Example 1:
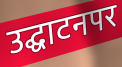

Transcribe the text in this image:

उद्घाटनपर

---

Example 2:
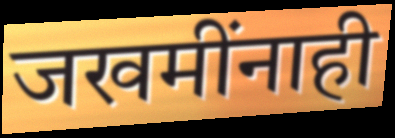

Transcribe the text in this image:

जखमींनाही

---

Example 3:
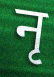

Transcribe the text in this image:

नृ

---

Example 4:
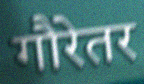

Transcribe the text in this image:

गौरेतर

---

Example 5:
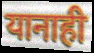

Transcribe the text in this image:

यानाही